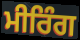
ਮੀਰਿੰਗ